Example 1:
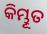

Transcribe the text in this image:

କିମ୍ଭୂତ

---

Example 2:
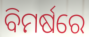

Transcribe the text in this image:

ବିମର୍ଷରେ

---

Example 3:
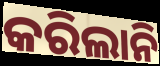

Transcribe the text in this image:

କରିଲାନି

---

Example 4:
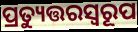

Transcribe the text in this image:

ପ୍ରତ୍ୟୁତ୍ତରସ୍ଵରୂପ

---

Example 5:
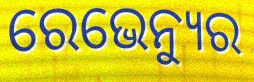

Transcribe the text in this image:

ରେଭେନ୍ୟୁର